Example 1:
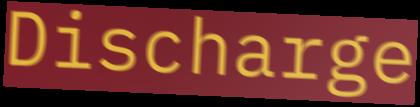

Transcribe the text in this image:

Discharge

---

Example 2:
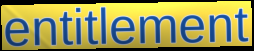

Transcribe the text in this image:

entitlement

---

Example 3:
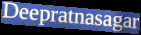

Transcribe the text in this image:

Deepratnasagar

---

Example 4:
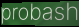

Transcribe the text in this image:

probash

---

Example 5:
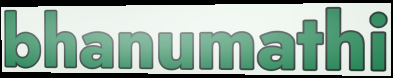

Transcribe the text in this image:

bhanumathi